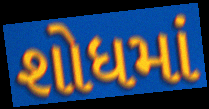
શોધમાં